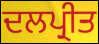
ਦਲਪ੍ਰੀਤ